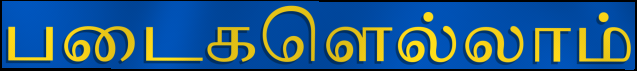
படைகளெல்லாம்